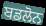
ਬਡਲੋਨ